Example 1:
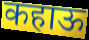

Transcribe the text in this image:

कहाऊ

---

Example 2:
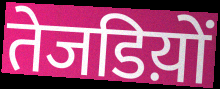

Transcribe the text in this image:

तेजडिय़ों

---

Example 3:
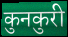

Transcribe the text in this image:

कुनकुरी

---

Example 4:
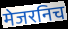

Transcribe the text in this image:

मेजरनिच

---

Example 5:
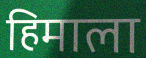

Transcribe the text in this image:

हिमाला